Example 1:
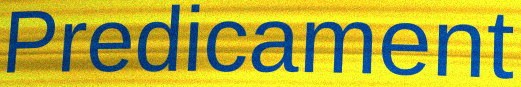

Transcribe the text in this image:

Predicament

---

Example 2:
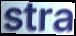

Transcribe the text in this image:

stra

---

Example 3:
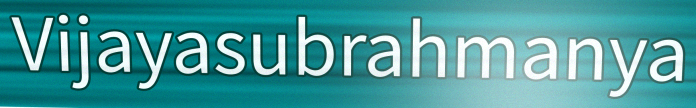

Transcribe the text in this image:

Vijayasubrahmanya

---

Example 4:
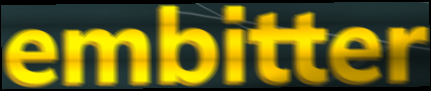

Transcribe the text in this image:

embitter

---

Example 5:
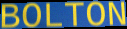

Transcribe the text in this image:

BOLTON